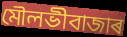
মৌলভীবাজাৰ